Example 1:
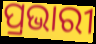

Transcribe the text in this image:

ପ୍ରଭାରୀ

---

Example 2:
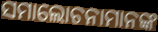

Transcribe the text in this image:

ସମାଲୋଚନାମାନଙ୍କ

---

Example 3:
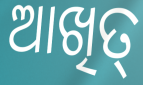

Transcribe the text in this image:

ଆଖିତ୍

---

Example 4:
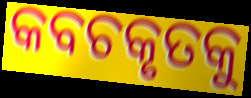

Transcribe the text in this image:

କବଚକୃତକୁ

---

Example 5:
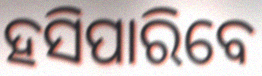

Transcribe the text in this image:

ହସିପାରିବେ